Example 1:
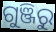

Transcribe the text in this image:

ଗୁଞ୍ଜିରୁ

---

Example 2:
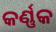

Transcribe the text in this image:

କର୍ଣ୍ଣକ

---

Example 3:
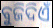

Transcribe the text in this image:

ବୁଜିଦିଏଁ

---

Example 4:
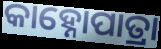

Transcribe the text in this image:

କାହ୍ନୋପାତ୍ରା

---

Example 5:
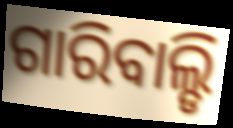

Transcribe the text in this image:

ଗାରିବାଲ୍ଡି